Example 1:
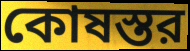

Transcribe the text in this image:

কোষস্তর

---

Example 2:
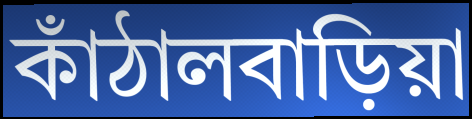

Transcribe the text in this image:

কাঁঠালবাড়িয়া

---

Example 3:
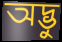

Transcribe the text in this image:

অদ্ভু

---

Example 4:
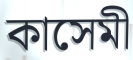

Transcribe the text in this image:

কাসেমী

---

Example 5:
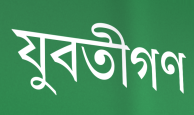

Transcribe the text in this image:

যুবতীগণ